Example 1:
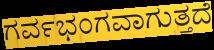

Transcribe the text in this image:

ಗರ್ವಭಂಗವಾಗುತ್ತದೆ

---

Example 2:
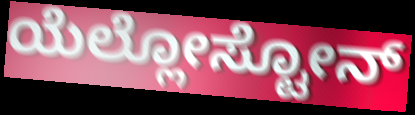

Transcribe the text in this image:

ಯೆಲ್ಲೋಸ್ಟೋನ್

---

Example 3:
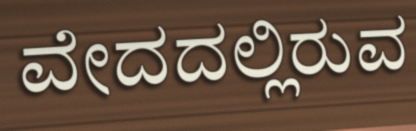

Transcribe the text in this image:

ವೇದದಲ್ಲಿರುವ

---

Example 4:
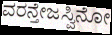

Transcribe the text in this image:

ವರನ್ತೇಜಸ್ವಿನೋ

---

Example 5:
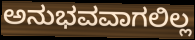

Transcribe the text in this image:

ಅನುಭವವಾಗಲಿಲ್ಲ